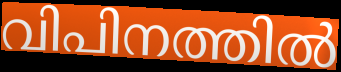
വിപിനത്തിൽ